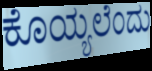
ಕೊಯ್ಯಲೆಂದು